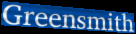
Greensmith